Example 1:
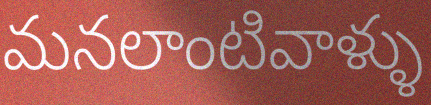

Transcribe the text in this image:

మనలాంటివాళ్ళు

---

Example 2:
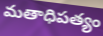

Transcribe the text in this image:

మతాధిపత్యం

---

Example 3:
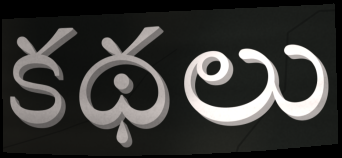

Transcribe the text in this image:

కథలు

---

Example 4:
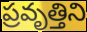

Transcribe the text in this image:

ప్రవృత్తిని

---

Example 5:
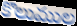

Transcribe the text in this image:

కొలుముల